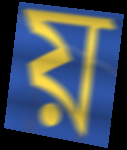
য়